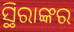
ସ୍ଥିରାଙ୍କର